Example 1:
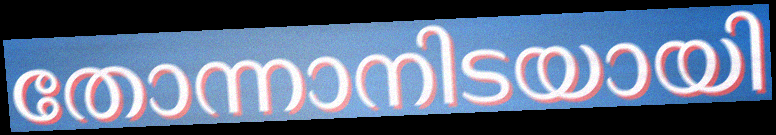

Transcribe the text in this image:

തോന്നാനിടയായി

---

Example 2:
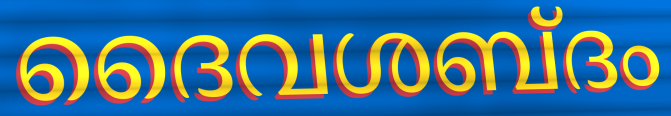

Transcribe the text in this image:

ദൈവശബ്ദം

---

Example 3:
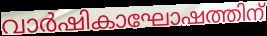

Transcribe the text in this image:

വാർഷികാഘോഷത്തിന്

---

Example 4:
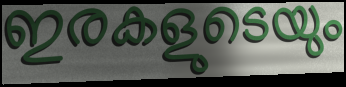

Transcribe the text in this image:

ഇരകളുടെയും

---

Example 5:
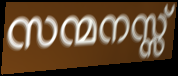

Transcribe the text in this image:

സന്മനസ്സ്